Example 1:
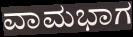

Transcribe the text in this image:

ವಾಮಭಾಗ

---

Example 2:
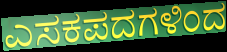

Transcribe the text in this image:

ಎಸಕಪದಗಳಿಂದ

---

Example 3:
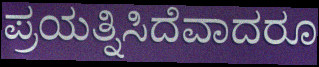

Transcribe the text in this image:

ಪ್ರಯತ್ನಿಸಿದೆವಾದರೂ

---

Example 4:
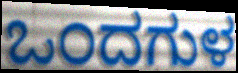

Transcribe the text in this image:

ಒಂದಗುಳ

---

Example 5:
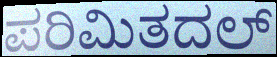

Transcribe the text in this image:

ಪರಿಮಿತದಲ್